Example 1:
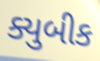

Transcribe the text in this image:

ક્યુબીક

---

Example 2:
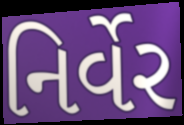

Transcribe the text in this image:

નિર્વેર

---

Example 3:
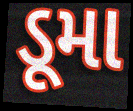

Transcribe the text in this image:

ડૂમા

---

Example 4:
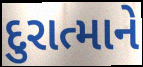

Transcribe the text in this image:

દુરાત્માને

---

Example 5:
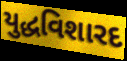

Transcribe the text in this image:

યુદ્ધવિશારદ